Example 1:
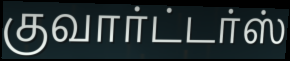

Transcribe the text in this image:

குவார்ட்டர்ஸ்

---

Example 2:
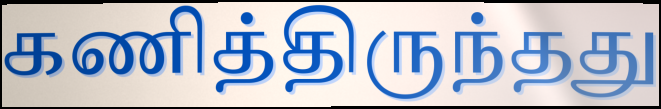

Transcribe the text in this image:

கணித்திருந்தது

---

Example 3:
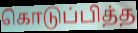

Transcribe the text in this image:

கொடுப்பித்த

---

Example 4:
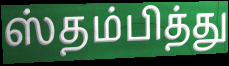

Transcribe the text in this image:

ஸ்தம்பித்து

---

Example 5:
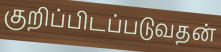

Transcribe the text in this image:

குறிப்பிடப்படுவதன்